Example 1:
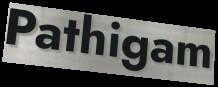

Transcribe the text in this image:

Pathigam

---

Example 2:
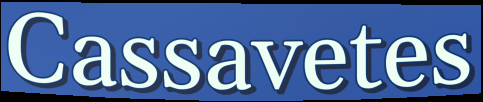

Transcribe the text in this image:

Cassavetes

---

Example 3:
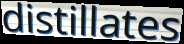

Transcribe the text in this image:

distillates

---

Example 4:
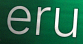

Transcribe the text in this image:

eru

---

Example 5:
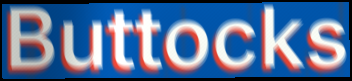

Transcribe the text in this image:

Buttocks